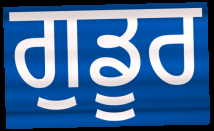
ਗੁਡੂਰ